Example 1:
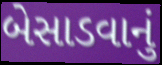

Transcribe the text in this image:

બેસાડવાનું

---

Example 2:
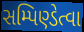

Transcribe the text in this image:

સમ્પિણ્ડેત્વા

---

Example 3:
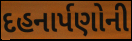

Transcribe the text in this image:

દહનાર્પણોની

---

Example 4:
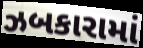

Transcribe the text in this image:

ઝબકારામાં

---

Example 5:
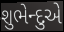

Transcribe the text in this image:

શુભેન્દુએ